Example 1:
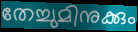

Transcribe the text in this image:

തേച്ചുമിനുക്കും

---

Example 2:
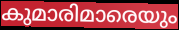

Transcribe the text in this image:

കുമാരിമാരെയും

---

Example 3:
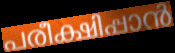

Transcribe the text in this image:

പരീക്ഷിപ്പാൻ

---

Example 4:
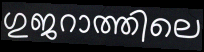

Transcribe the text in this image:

ഗുജറാത്തിലെ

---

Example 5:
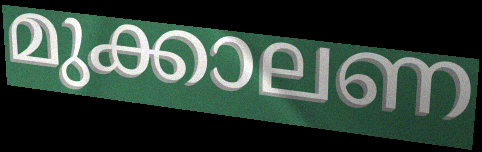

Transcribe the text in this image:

മുക്കാലണ